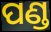
ପଣ୍ଡ